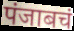
पंजाबचं